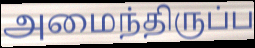
அமைந்திருப்ப